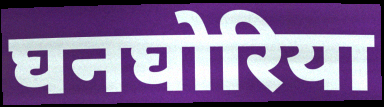
घनघोरिया